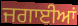
ਜਗਾਈਆਂ